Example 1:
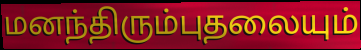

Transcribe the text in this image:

மனந்திரும்புதலையும்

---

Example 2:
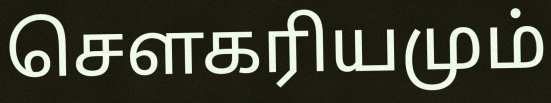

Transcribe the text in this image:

சௌகரியமும்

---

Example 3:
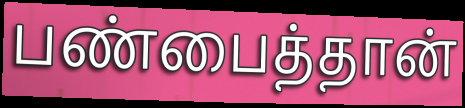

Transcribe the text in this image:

பண்பைத்தான்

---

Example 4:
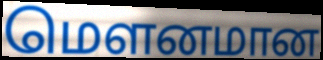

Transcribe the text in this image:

மௌனமான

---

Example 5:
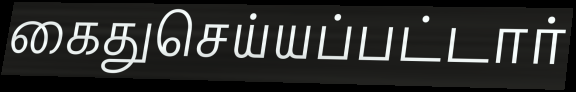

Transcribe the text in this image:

கைதுசெய்யப்பட்டார்